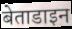
बेताडाइन